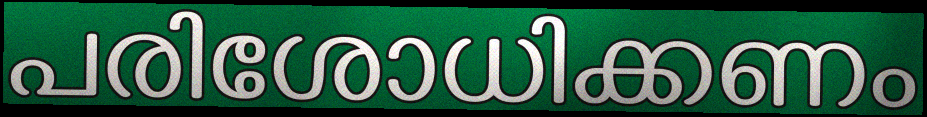
പരിശോധിക്കണം